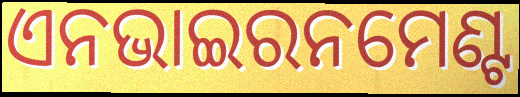
ଏନଭାଇରନମେଣ୍ଟ